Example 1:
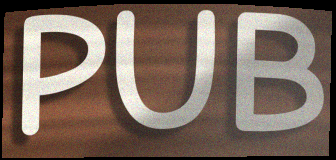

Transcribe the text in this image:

PUB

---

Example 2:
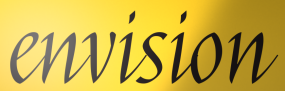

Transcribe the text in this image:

envision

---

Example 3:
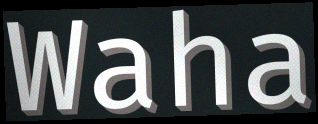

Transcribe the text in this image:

Waha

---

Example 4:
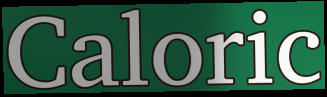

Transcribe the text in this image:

Caloric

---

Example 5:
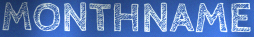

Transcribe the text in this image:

MONTHNAME